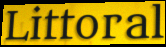
Littoral